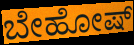
ಬೇಹೋಷ್